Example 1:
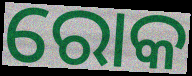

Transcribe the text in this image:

ରୋକ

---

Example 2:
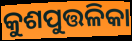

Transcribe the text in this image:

କୁଶପୁତ୍ତଳିକା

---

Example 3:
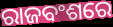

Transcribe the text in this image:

ରାଜବଂଶରେ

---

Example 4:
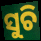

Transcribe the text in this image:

ସୁଚି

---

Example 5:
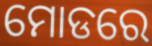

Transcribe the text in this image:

ମୋଡରେ